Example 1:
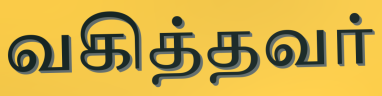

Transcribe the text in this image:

வகித்தவர்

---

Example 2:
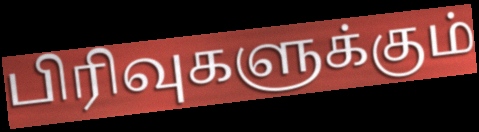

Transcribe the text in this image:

பிரிவுகளுக்கும்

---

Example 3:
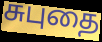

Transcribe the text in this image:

சுபுதை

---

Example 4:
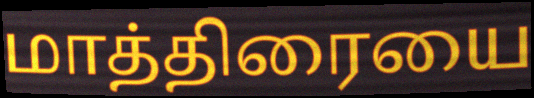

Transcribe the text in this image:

மாத்திரையை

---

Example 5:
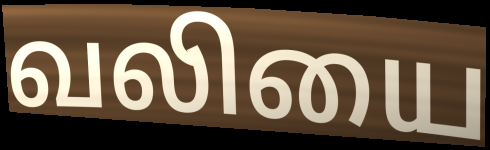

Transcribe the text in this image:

வலியை